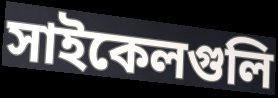
সাইকেলগুলি